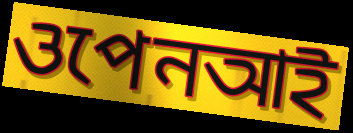
ওপেনআই